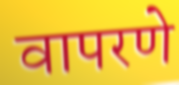
वापरणे